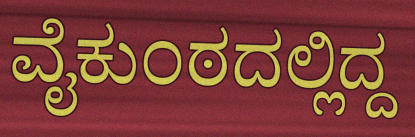
ವೈಕುಂಠದಲ್ಲಿದ್ದ